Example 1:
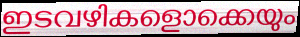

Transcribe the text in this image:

ഇടവഴികളൊക്കെയും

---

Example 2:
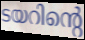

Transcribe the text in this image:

ടയറിന്റെ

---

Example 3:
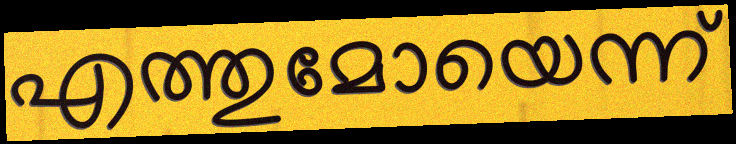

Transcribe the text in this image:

എത്തുമോയെന്ന്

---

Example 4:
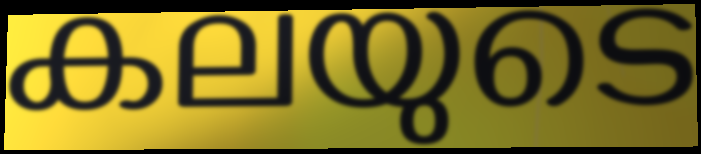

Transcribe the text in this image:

കലയുടെ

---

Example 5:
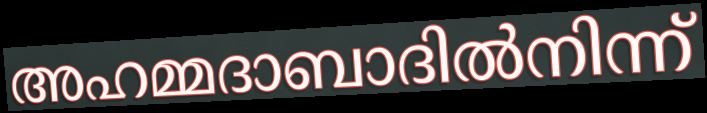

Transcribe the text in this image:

അഹമ്മദാബാദിൽനിന്ന്